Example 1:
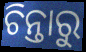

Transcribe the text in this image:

ଚିନ୍ତାରୁ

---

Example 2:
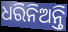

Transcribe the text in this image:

ଧରିନିଅନ୍ତି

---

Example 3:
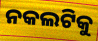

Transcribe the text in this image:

ନକଲଟିକୁ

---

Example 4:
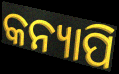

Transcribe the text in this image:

କନ୍ୟାପି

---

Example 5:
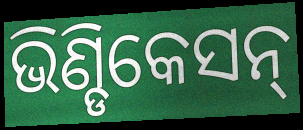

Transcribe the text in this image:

ଭିଣ୍ଡିକେସନ୍